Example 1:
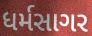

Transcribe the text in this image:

ધર્મસાગર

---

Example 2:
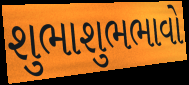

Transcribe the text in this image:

શુભાશુભભાવો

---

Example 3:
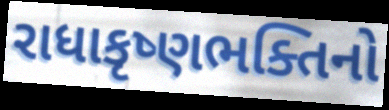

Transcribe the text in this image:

રાધાકૃષ્ણભક્તિનો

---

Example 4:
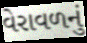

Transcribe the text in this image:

વેરાવળનું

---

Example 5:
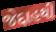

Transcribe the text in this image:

જેદ્દાહથી